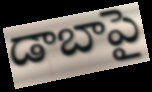
డాబాపై